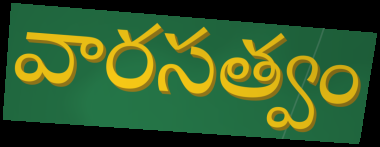
వారసత్వం